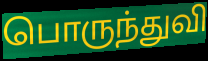
பொருந்துவி